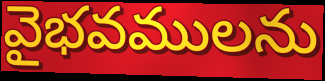
వైభవములను